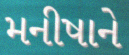
મનીષાને